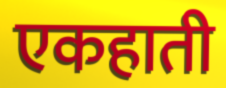
एकहाती